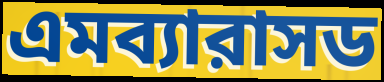
এমব্যারাসড